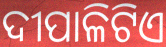
ଦୀପାଳିଟିଏ